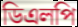
ডিএলপি